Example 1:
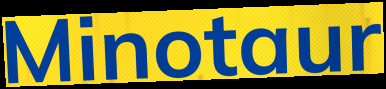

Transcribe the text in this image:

Minotaur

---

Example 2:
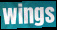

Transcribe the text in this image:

wings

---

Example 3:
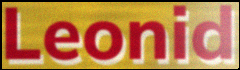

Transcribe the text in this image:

Leonid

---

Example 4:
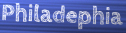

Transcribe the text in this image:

Philadephia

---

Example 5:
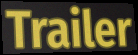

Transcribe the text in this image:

Trailer